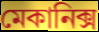
মেকানিক্স